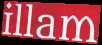
illam